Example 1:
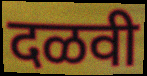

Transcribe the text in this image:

दळवी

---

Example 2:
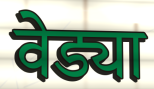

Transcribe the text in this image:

वेड्या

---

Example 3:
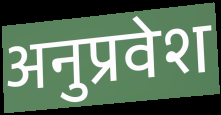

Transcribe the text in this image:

अनुप्रवेश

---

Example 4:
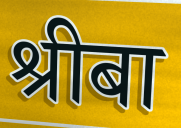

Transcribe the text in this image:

श्रीबा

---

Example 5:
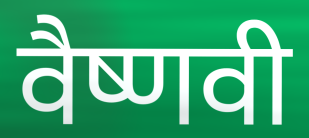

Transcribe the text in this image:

वैष्णवी